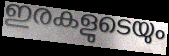
ഇരകളുടെയും